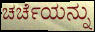
ಚರ್ಚೆಯನ್ನು